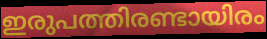
ഇരുപത്തിരണ്ടായിരം